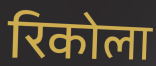
रिकोला